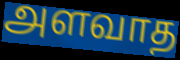
அளவாத